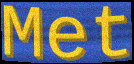
Met